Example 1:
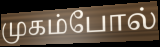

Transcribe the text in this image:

முகம்போல்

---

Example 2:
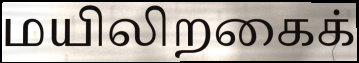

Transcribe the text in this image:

மயிலிறகைக்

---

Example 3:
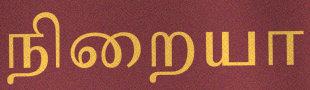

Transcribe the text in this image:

நிறையா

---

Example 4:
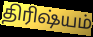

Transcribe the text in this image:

திரிஷ்யம்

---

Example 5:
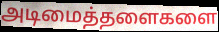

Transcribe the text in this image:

அடிமைத்தளைகளை